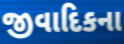
જીવાદિકના